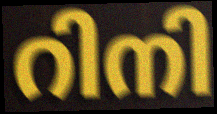
റിനി